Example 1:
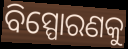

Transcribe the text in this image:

ବିସ୍ପୋରଣକୁ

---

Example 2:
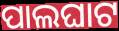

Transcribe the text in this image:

ପାଲଘାଟ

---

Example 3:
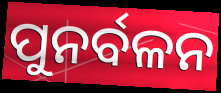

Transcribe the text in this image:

ପୁନର୍ବଳନ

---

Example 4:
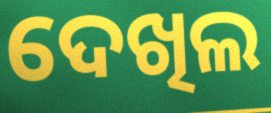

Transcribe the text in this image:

ଦେଖିଲ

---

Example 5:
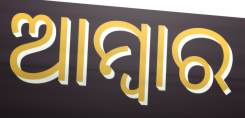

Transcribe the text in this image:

ଆମ୍ବାର